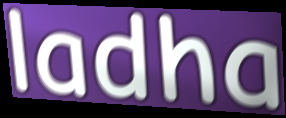
ladha